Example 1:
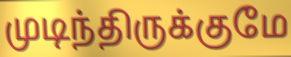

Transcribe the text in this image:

முடிந்திருக்குமே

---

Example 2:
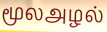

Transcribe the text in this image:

மூலஅழல்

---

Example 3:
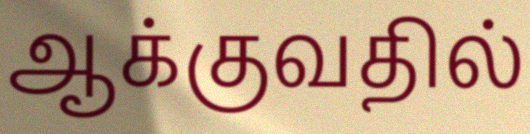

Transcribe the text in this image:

ஆக்குவதில்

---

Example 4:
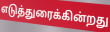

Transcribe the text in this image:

எடுத்துரைக்கின்றது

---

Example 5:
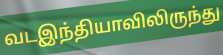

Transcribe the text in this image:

வடஇந்தியாவிலிருந்து